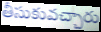
తీసుకువచ్చారు